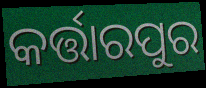
କର୍ତ୍ତାରପୁର